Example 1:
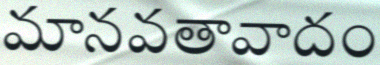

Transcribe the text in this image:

మానవతావాదం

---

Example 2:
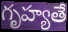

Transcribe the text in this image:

గృహ్యతే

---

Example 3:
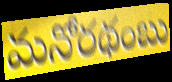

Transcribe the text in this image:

మనోరథంబు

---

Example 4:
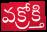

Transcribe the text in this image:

వక్రోక్తి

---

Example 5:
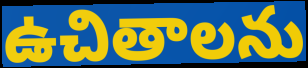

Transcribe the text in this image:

ఉచితాలను